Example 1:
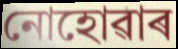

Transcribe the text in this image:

নোহোৱাৰ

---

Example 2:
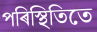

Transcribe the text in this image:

পৰিস্থিতিতে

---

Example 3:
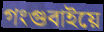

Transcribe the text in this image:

গংগুবাইয়ে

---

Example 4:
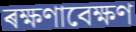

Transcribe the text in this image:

ৰক্ষণাবেক্ষণ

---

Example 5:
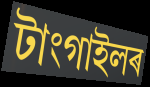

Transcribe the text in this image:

টাংগাইলৰ